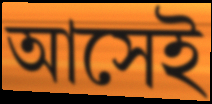
আসেই